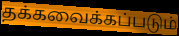
தக்கவைக்கப்படும்